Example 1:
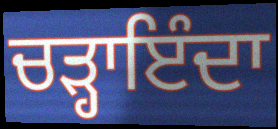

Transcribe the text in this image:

ਚੜ੍ਹਾਇੰਦਾ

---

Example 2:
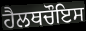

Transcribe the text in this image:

ਹੈਲਥਚੌਇਸ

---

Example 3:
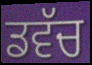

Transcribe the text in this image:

ਡਵੱਚ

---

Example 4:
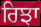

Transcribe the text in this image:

ਰਿਝਾ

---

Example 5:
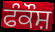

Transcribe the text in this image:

ਫੰਕੌਸ਼